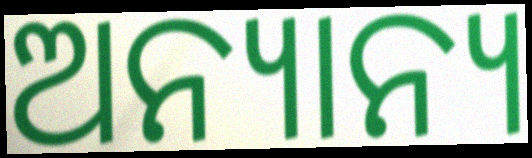
ଅନ୍ୟାନ୍ଯ